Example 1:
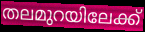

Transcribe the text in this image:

തലമുറയിലേക്ക്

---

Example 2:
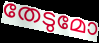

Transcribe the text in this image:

തേടുമോ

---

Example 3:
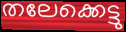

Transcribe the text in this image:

തലേക്കെട്ടു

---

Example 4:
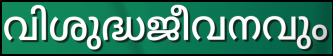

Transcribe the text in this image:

വിശുദ്ധജീവനവും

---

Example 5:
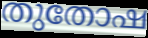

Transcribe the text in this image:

തുതോഷ